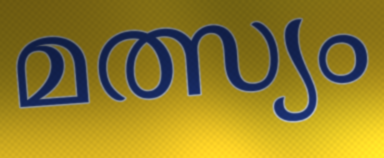
മത്സ്യം